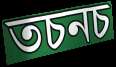
তচনচ